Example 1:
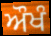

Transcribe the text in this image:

ਔਖੰ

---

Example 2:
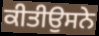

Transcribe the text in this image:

ਕੀਤੀਉਸਨੇ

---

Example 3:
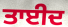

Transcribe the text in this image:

ਤਾਈਦ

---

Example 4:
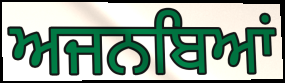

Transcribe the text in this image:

ਅਜਨਬਿਆਂ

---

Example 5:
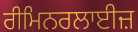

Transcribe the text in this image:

ਰੀਮਿਨਰਲਾਈਜ਼